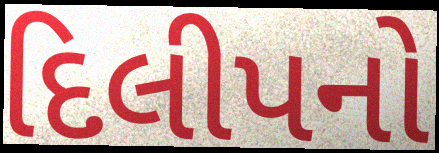
દિલીપનો